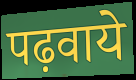
पढ़वाये